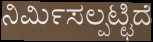
ನಿರ್ಮಿಸಲ್ಪಟ್ಟಿದೆ